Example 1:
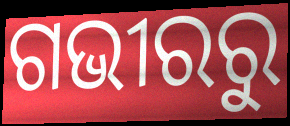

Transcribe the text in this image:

ଗଭୀରରୁ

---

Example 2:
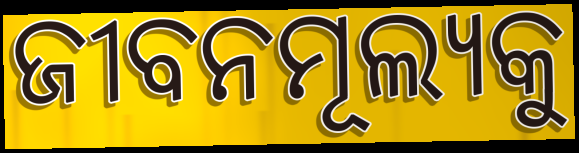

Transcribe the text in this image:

ଜୀବନମୂଲ୍ୟକୁ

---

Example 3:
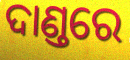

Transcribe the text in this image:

ଦାଣ୍ଡରେ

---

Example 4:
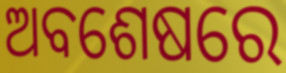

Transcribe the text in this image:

ଅବଶେଷରେ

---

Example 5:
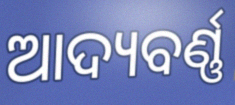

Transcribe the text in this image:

ଆଦ୍ୟବର୍ଣ୍ଣ